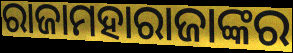
ରାଜାମହାରାଜାଙ୍କର